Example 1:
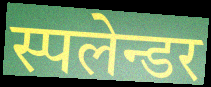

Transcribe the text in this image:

स्पलेन्डर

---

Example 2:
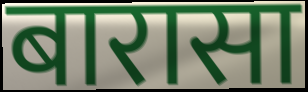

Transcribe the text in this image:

बारासा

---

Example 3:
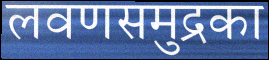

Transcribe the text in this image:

लवणसमुद्रका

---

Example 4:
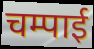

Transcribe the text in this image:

चम्‍पाई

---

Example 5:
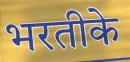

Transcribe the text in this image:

भरतीके